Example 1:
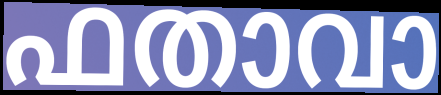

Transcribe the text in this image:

ഫതാവാ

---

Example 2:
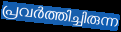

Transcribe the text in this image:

പ്രവർത്തിച്ചിരുന്ന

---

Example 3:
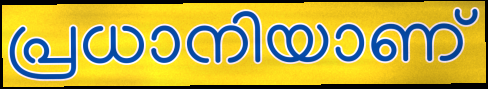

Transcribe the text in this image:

പ്രധാനിയാണ്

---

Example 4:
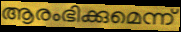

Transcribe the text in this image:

ആരംഭിക്കുമെന്ന്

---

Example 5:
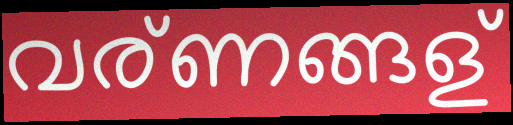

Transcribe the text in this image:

വര്ണങ്ങള്